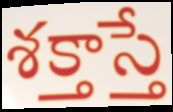
శక్తాస్తే